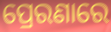
ପ୍ରେରଣାରେ